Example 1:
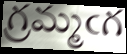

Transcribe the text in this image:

గ్రమ్మఁగ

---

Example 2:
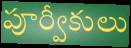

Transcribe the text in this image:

పూర్వీకులు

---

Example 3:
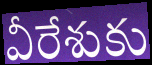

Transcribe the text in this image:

వీరేశుకు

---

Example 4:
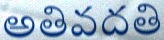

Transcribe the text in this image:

అతివదతి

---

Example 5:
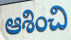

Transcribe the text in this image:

ఆశించి